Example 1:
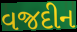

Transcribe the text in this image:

વજ્રદીન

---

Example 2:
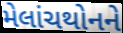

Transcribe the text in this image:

મેલાંચથોનને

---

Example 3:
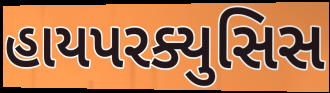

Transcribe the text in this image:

હાયપરક્યુસિસ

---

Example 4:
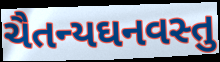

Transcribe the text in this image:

ચૈતન્યઘનવસ્તુ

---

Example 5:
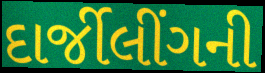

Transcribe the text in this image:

દાર્જીલીંગની